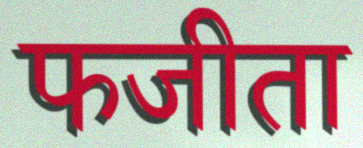
फजीता